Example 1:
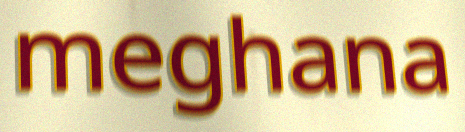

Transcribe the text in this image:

meghana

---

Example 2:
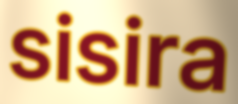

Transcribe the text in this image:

sisira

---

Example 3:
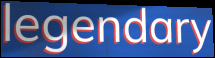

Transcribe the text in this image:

legendary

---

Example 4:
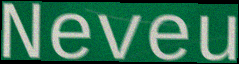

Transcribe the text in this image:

Neveu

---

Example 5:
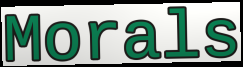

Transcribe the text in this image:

Morals